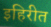
इहिरीत